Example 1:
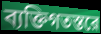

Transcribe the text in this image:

ব্যক্তিগতস্তরে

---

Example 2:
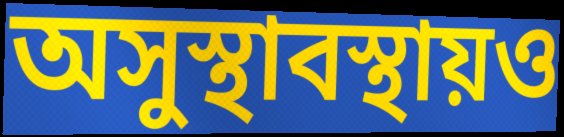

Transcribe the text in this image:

অসুস্থাবস্থায়ও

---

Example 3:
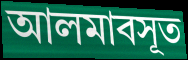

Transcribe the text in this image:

আলমাবসূত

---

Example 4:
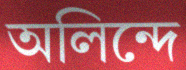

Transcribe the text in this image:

অলিন্দে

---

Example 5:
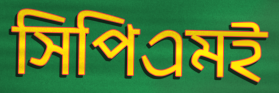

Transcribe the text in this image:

সিপিএমই